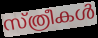
സ്‌ത്രീകൾ